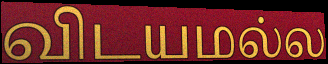
விடயமல்ல